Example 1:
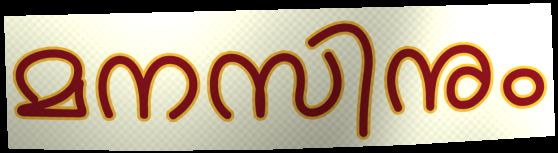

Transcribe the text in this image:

മനസിനും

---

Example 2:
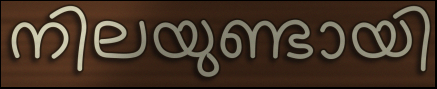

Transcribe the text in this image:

നിലയുണ്ടായി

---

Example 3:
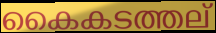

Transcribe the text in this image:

കൈകടത്തല്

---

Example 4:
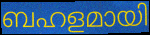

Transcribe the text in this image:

ബഹളമായി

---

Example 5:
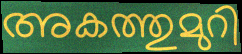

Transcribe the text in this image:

അകത്തുമുറി